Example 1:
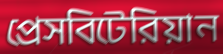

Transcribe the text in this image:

প্রেসবিটেরিয়ান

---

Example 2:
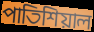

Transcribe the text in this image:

পাতিশিয়াল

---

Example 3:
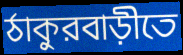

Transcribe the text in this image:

ঠাকুরবাড়ীতে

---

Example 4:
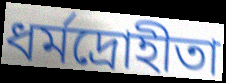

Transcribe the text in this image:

ধর্মদ্রোহীতা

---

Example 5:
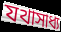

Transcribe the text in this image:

যথাসাধ্য